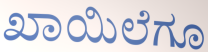
ಖಾಯಿಲೆಗೂ